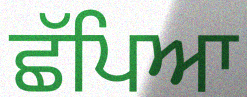
ਛੱਪਿਆ